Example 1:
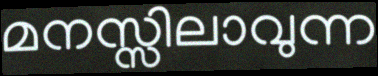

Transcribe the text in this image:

മനസ്സിലാവുന്ന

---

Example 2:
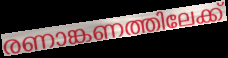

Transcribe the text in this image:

രണാങ്കണത്തിലേക്ക്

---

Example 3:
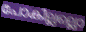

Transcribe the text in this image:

പോകില്ലല്ലൊ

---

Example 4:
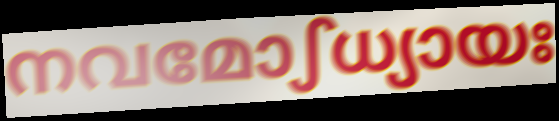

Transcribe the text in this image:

നവമോഽധ്യായഃ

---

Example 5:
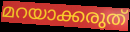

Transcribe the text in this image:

മറയാക്കരുത്